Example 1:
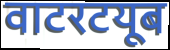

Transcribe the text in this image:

वाटरटयूब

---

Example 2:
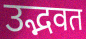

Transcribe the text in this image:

उद्भवत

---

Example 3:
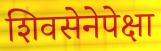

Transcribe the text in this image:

शिवसेनेपेक्षा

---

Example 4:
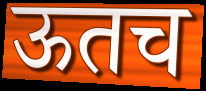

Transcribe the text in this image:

ऊतच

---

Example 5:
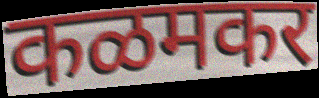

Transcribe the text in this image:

कळमकर